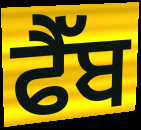
ਫੈੱਬ